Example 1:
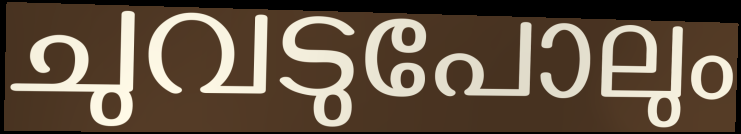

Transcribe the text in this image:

ചുവടുപോലും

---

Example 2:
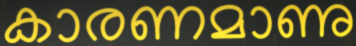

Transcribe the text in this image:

കാരണമാണു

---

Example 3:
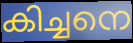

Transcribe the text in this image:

കിച്ചനെ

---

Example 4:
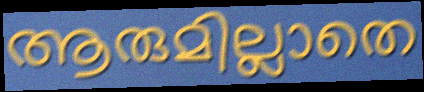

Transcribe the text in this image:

ആരുമില്ലാതെ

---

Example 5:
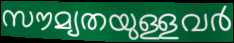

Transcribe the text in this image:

സൗമ്യതയുള്ളവർ